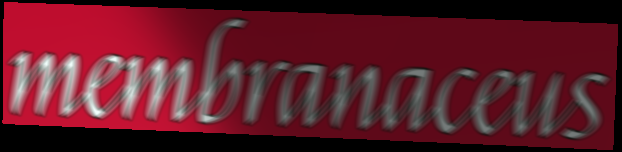
membranaceus